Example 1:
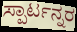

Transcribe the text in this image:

ಸ್ಪಾರ್ಟನ್ನರ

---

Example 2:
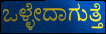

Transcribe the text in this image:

ಒಳ್ಳೇದಾಗುತ್ತೆ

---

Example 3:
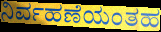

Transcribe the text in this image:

ನಿರ್ವಹಣೆಯಂತಹ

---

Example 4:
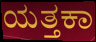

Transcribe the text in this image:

ಯತ್ತಕಾ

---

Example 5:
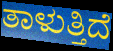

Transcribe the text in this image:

ತಾಳುತ್ತಿದೆ